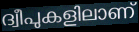
ദ്വീപുകളിലാണ്